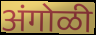
अंगोळी